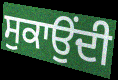
ਸੁਕਾਉਂਦੀ